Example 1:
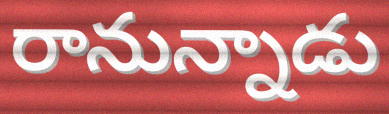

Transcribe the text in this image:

రానున్నాడు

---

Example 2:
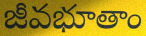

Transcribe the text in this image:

జీవభూతాం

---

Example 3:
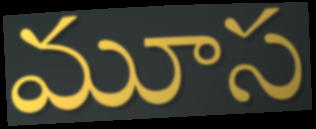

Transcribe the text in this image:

మూస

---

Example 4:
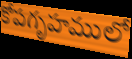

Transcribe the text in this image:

కోపగృహములో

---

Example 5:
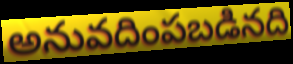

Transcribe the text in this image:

అనువదింపబడినది